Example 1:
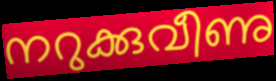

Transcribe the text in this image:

നറുക്കുവീണു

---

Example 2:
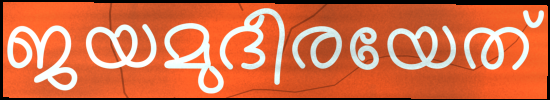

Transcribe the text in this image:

ജയമുദീരയേത്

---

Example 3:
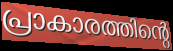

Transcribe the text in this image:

പ്രാകാരത്തിന്റെ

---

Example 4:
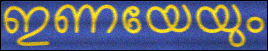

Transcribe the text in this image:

ഇണയേയും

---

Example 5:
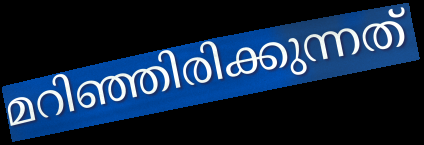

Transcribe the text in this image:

മറിഞ്ഞിരിക്കുന്നത്